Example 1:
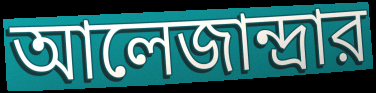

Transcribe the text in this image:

আলেজান্দ্রার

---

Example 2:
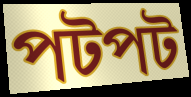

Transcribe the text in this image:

পটপট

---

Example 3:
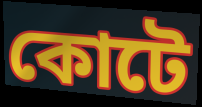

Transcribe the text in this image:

কোটে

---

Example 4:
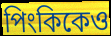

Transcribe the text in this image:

পিংকিকেও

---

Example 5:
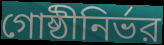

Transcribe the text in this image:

গোষ্ঠীনির্ভর